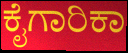
ಕೈಗಾರಿಕಾ